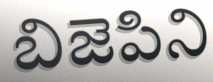
బిజెపిని